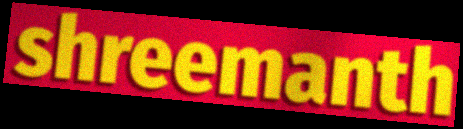
shreemanth